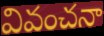
వివంచనా